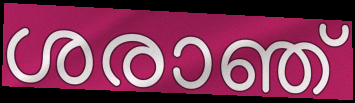
ശരാഞ്